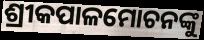
ଶ୍ରୀକପାଳମୋଚନଙ୍କୁ